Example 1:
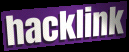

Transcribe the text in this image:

hacklink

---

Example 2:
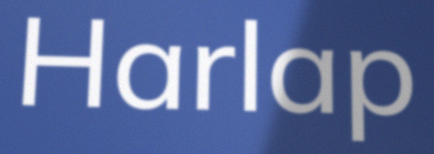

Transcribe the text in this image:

Harlap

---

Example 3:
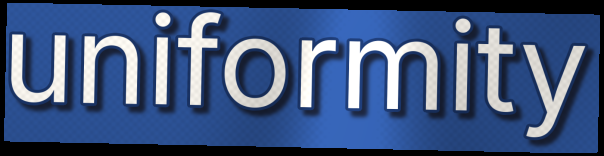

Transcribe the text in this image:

uniformity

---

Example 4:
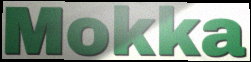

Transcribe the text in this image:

Mokka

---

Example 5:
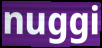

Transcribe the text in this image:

nuggi